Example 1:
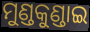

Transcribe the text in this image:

ମୁଣ୍ଡକୁଣ୍ଡାଇ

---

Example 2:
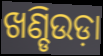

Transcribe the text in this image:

ଖଣ୍ଡିଉଡ଼ା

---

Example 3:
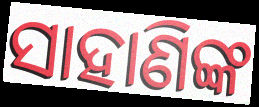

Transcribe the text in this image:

ସାହାଣିଙ୍କ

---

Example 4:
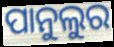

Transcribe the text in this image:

ପାନୁଲୁର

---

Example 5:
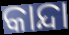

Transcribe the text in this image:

କାନ୍ଦା